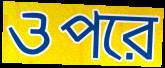
ওপরে